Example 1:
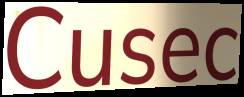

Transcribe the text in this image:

Cusec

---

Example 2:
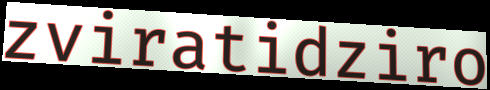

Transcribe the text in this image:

zviratidziro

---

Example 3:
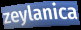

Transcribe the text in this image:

zeylanica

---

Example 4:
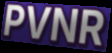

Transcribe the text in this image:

PVNR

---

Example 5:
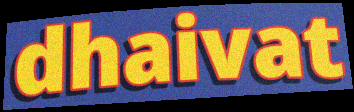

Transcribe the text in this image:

dhaivat